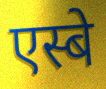
एस्बे